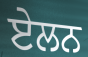
ਏਲਨ